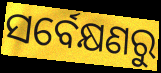
ସର୍ବେକ୍ଷଣରୁ